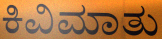
ಕಿವಿಮಾತು